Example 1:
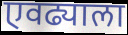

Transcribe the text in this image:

एवढ्याला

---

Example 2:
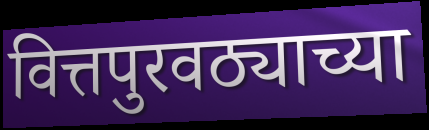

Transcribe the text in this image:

वित्तपुरवठ्याच्या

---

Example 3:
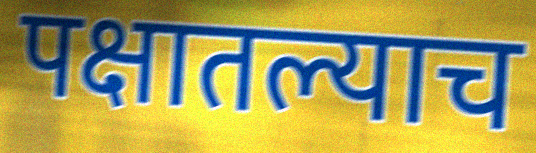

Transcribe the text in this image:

पक्षातल्याच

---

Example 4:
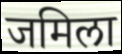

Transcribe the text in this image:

जमिला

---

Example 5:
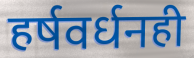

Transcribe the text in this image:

हर्षवर्धनही